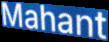
Mahant